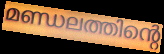
മണ്ഡലത്തിന്റെ